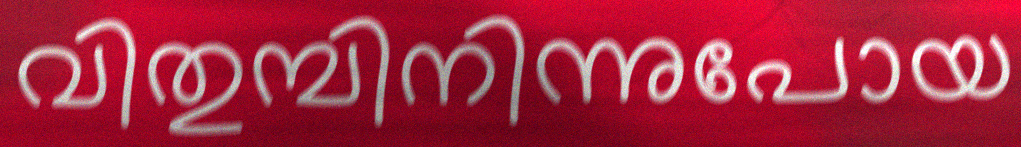
വിതുമ്പിനിന്നുപോയ